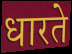
धारते